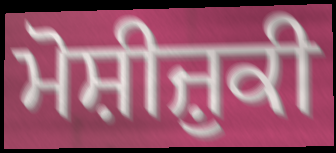
ਮੋਸ਼ੀਜ਼ੁਕੀ